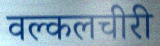
वल्कलचीरी